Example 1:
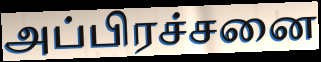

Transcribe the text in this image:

அப்பிரச்சனை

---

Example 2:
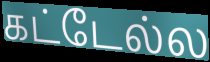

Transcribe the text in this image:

கட்டேல்ல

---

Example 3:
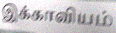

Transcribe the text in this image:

இக்காவியம்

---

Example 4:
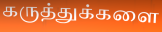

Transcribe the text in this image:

கருத்துக்களை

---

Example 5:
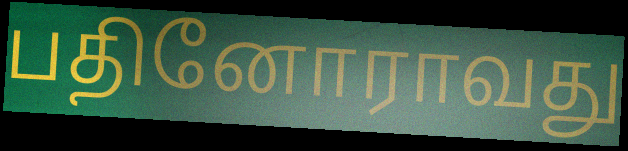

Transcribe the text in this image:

பதினோராவது